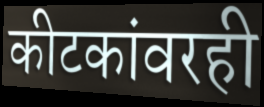
कीटकांवरही